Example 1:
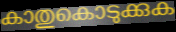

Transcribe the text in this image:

കാതുകൊടുക്കുക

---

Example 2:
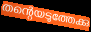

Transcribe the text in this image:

തന്റെയടുത്തേക്കു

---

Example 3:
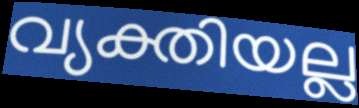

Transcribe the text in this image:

വ്യക്തിയല്ല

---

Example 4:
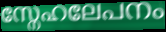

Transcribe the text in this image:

സ്നേഹലേപനം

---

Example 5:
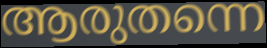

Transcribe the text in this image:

ആരുതന്നെ